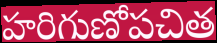
హరిగుణోపచిత